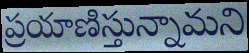
ప్రయాణిస్తున్నామని